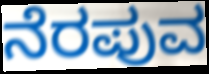
ನೆರಪುವ